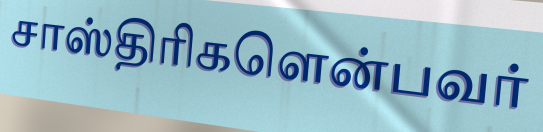
சாஸ்திரிகளென்பவர்